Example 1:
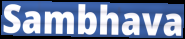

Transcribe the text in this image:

Sambhava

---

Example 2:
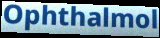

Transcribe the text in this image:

Ophthalmol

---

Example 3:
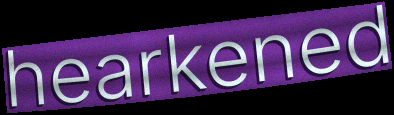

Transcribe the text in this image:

hearkened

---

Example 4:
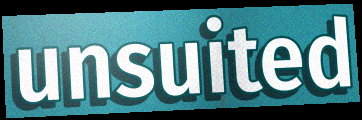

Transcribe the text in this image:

unsuited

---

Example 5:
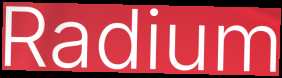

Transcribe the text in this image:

Radium